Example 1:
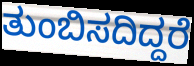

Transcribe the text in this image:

ತುಂಬಿಸದಿದ್ದರೆ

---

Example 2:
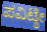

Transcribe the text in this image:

ಪವಿಟ್ಠೇ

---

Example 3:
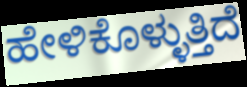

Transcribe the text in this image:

ಹೇಳಿಕೊಳ್ಳುತ್ತಿದೆ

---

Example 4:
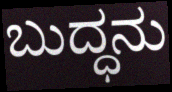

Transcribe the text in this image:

ಬುದ್ಧನು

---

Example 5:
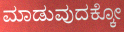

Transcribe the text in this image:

ಮಾಡುವುದಕ್ಕೋ